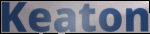
Keaton